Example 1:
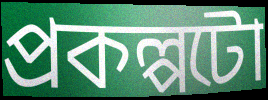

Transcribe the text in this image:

প্ৰকল্পটো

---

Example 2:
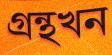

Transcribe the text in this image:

গ্ৰন্থখন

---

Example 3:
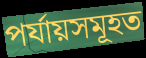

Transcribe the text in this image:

পৰ্যায়সমূহত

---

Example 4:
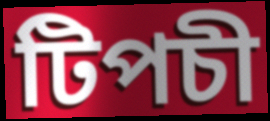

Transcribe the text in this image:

টিপচী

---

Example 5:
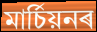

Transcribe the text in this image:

মাৰ্চিয়নৰ